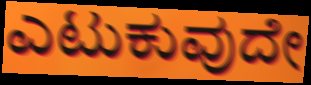
ಎಟುಕುವುದೇ